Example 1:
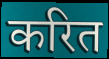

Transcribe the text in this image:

करित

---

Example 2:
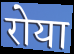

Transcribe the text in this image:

रोया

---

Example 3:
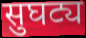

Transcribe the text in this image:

सुघट्य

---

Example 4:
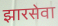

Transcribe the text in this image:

झारसेवा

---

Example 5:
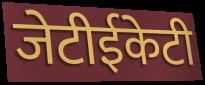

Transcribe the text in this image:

जेटीईकेटी